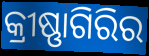
କ୍ରୀଷ୍ଣାଗିରିର